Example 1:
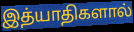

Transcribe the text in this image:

இத்யாதிகளால்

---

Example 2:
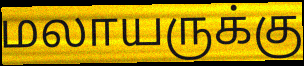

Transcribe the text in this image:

மலாயருக்கு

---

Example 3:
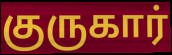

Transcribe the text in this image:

குருகார்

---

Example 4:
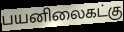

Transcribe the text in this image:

பயனிலைகட்கு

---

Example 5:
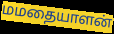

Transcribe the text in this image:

மமதையாளன்